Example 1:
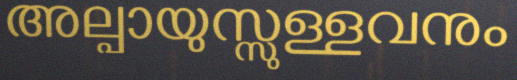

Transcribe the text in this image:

അല്പായുസ്സുള്ളവനും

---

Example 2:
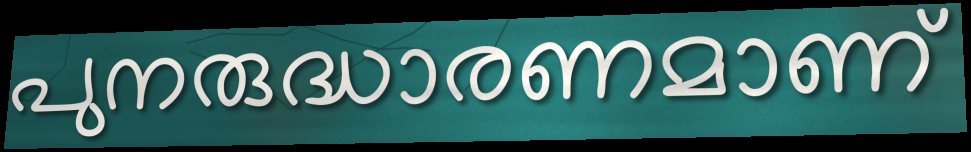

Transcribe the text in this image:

പുനരുദ്ധാരണമാണ്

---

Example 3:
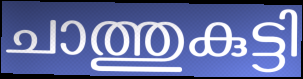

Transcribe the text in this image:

ചാത്തുകുട്ടി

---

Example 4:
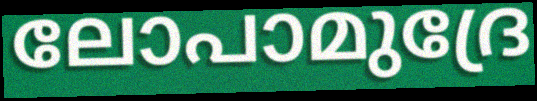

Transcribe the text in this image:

ലോപാമുദ്രേ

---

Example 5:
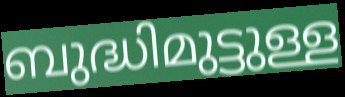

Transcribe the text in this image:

ബുദ്ധിമുട്ടുള്ള